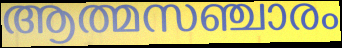
ആത്മസഞ്ചാരം